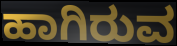
ಹಾಗಿರುವ